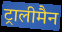
ट्रालीमैन